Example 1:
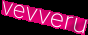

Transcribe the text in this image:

vevveru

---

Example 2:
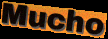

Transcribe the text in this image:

Mucho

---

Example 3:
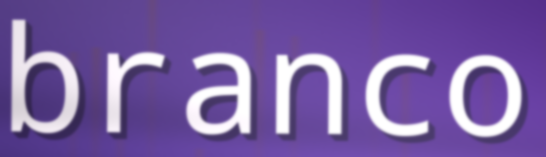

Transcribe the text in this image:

branco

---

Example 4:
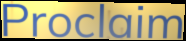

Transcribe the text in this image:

Proclaim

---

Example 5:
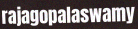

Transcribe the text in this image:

rajagopalaswamy